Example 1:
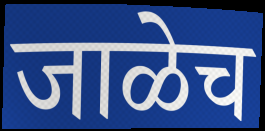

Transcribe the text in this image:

जाळेच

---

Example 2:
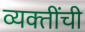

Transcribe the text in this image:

व्‍यक्‍तींची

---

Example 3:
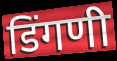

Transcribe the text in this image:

डिंगणी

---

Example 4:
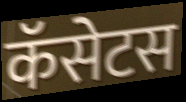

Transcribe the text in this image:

कॅसेटस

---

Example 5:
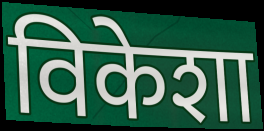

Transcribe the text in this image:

विकेशा